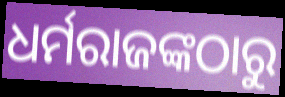
ଧର୍ମରାଜଙ୍କଠାରୁ